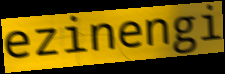
ezinengi